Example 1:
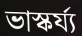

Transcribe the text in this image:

ভাস্কৰ্য্য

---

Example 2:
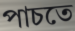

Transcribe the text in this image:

পাচতে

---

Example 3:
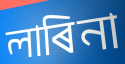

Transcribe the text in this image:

লাৰিনা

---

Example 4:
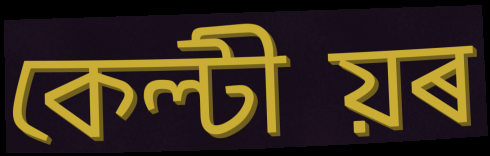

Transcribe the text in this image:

কেল্টীয়ৰ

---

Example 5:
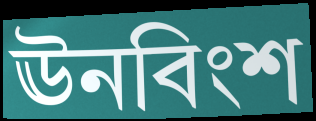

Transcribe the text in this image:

ঊনবিংশ